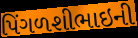
પિંગળશીભાઇની